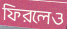
ফিরলেও